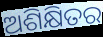
ଅଶିକ୍ଷିତର